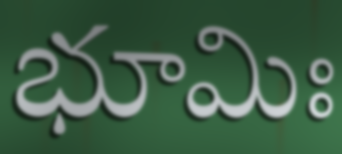
భూమిః